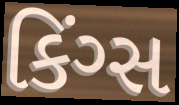
કિંગ્સ